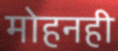
मोहनही